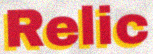
Relic